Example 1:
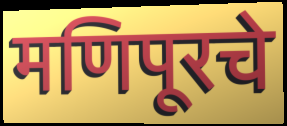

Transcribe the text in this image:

मणिपूरचे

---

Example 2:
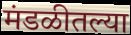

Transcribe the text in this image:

मंडळीतल्या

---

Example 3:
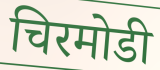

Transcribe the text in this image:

चिरमोडी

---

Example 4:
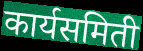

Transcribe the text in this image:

कार्यसमिती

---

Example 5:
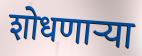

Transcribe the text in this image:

शोधणाऱ्या